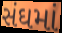
સંઘમાં